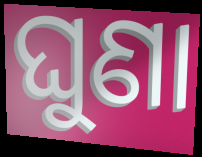
ଘୁଣା